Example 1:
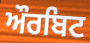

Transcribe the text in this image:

ਔਰਬਿਟ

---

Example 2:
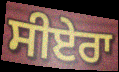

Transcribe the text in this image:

ਸੀਏਰਾ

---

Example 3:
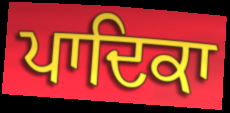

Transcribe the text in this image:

ਪਾਦਿਕਾ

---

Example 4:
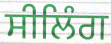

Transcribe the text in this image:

ਸੀਲਿੰਗ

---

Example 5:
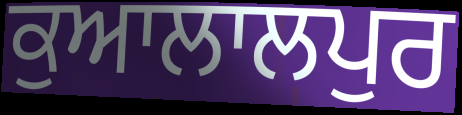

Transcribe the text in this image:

ਕੁਆਲਾਲਪੁਰ